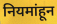
नियमांहून